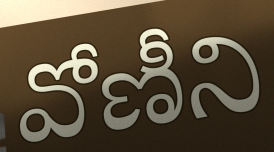
వోణీని